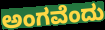
ಅಂಗವೆಂದು